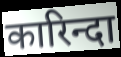
कारिन्दा